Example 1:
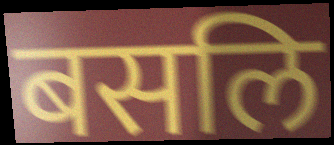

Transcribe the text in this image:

बसलि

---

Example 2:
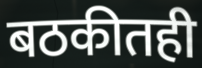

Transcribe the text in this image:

बठकीतही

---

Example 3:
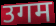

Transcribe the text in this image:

उगम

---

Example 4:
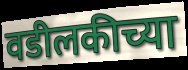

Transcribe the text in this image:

वडीलकीच्या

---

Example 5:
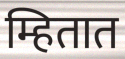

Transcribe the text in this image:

म्हितात